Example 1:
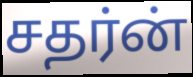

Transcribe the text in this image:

சதர்ன்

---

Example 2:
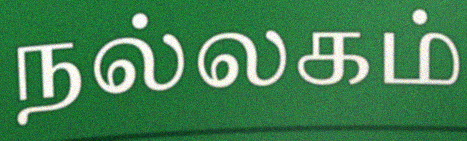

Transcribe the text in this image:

நல்லகம்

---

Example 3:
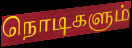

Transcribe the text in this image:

நொடிகளும்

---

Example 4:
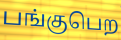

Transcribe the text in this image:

பங்குபெற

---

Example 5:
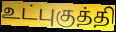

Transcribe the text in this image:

உட்புகுத்தி